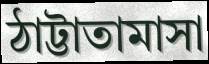
ঠাট্টাতামাসা